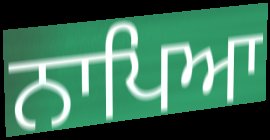
ਨਾਪਿਆ